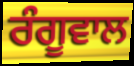
ਰੰਗੂਵਾਲ